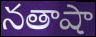
నతాషా